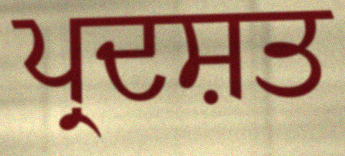
ਪ੍ਰਦਸ਼ਤ